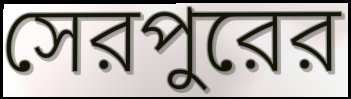
সেরপুরের